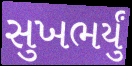
સુખભર્યું